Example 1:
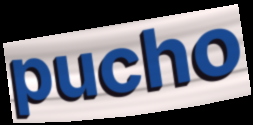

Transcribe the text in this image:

pucho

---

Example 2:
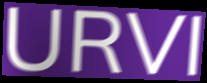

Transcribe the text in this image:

URVI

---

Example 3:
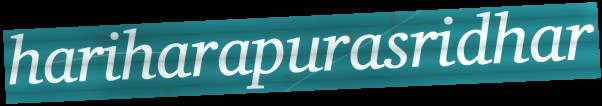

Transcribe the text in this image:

hariharapurasridhar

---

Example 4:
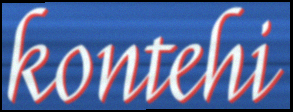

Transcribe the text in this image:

kontehi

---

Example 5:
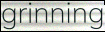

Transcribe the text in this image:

grinning